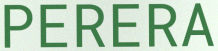
PERERA